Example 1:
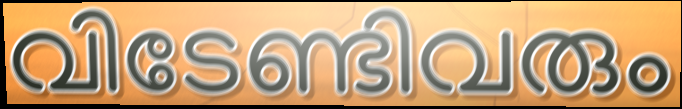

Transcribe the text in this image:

വിടേണ്ടിവരും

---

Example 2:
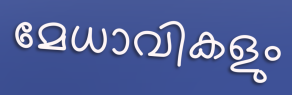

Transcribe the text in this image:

മേധാവികളും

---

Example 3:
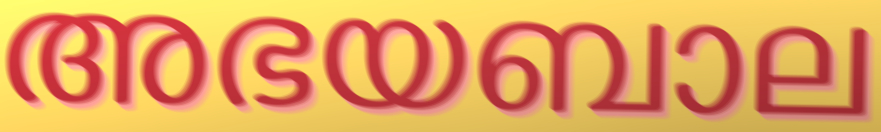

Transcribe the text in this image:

അഭയബാല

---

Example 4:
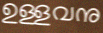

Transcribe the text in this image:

ഉള്ളവനു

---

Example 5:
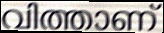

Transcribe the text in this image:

വിത്താണ്